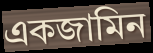
একজামিন